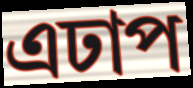
এঢাপ